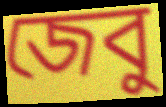
জেবু